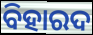
ବିହାରଦ